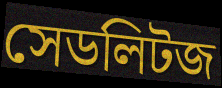
সেডলিটজ